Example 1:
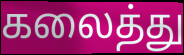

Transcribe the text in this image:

கலைத்து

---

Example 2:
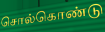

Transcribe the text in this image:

சொல்கொண்டு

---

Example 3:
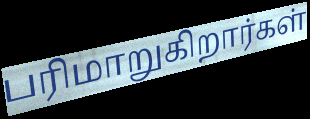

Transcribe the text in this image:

பரிமாறுகிறார்கள்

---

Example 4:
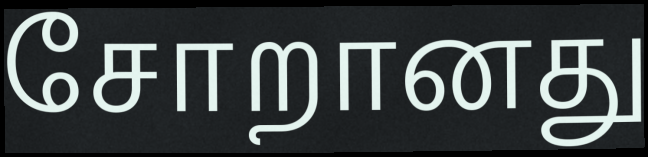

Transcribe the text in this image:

சோறானது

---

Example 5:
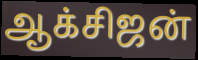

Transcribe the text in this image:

ஆக்சிஜன்